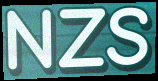
NZS